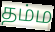
தம்ம